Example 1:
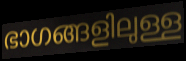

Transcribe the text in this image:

ഭാഗങ്ങളിലുള്ള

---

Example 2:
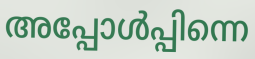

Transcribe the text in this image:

അപ്പോൾപ്പിന്നെ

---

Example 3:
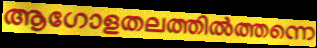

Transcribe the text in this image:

ആഗോളതലത്തിൽത്തന്നെ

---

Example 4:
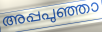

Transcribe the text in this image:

അപ്പപുഞ്ഞാ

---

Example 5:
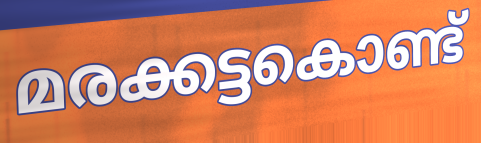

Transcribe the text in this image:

മരക്കട്ടകൊണ്ട്